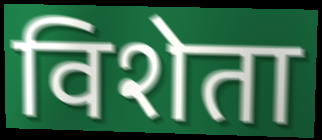
विशेता